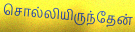
சொல்லியிருந்தேன்